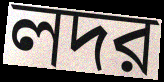
লদর